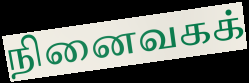
நினைவகக்